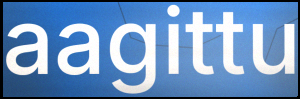
aagittu